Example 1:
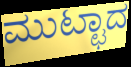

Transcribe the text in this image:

ಮುಟ್ಟಾದ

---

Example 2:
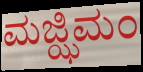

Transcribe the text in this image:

ಮಜ್ಝಿಮಂ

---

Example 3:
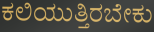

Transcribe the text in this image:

ಕಲಿಯುತ್ತಿರಬೇಕು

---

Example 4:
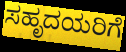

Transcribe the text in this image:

ಸಹೃದಯರಿಗೆ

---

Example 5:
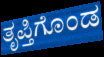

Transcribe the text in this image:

ತೃಪ್ತಿಗೊಂಡ